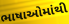
ભાષાઓમાંથી